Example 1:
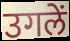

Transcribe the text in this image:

उगलें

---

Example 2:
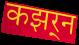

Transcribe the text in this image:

कझर्न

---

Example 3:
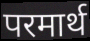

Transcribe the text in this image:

परमार्थ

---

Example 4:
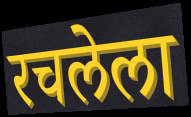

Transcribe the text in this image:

रचलेला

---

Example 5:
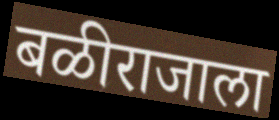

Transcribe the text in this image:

बळीराजाला